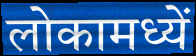
लोकामध्यें